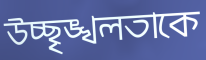
উচ্ছৃঙ্খলতাকে